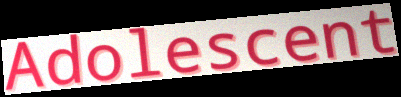
Adolescent